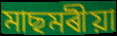
মাছমৰীয়া